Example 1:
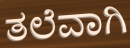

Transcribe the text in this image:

ತಲೆವಾಗಿ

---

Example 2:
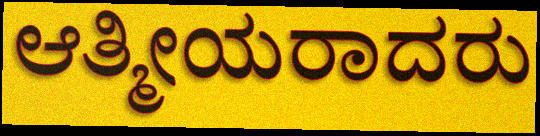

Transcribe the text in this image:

ಆತ್ಮೀಯರಾದರು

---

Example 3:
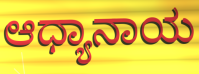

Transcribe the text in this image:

ಆಧ್ಯಾನಾಯ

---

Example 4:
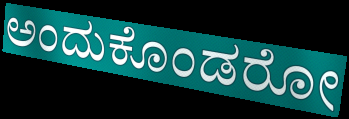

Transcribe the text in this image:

ಅಂದುಕೊಂಡರೋ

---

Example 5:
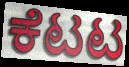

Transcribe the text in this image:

ಕೆಟಟ